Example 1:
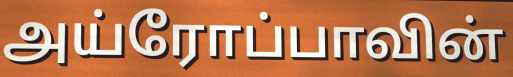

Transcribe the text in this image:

அய்ரோப்பாவின்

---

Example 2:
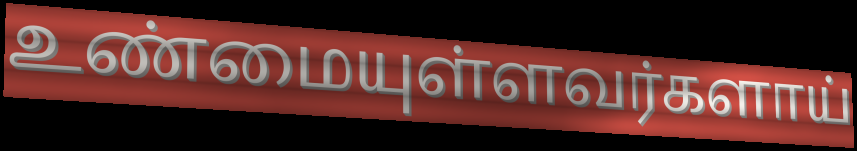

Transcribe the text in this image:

உண்மையுள்ளவர்களாய்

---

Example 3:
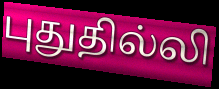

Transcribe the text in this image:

புதுதில்லி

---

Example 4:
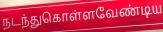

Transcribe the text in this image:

நடந்துகொள்ளவேண்டிய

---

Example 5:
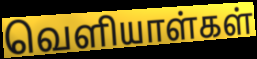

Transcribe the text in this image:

வெளியாள்கள்